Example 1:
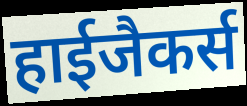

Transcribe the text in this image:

हाईजैकर्स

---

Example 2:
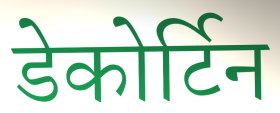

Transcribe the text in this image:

डेकोर्टिन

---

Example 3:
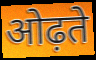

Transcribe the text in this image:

ओढ़ते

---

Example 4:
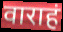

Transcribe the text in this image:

वाराहं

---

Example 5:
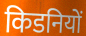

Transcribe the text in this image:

किडनियों